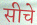
सीचे